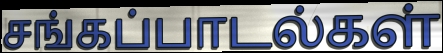
சங்கப்பாடல்கள்